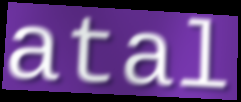
atal